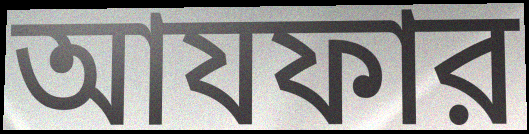
আযফার